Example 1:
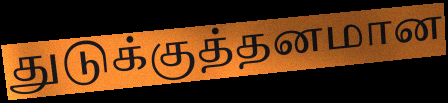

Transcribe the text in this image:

துடுக்குத்தனமான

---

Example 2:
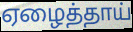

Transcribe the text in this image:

ஏழைத்தாய்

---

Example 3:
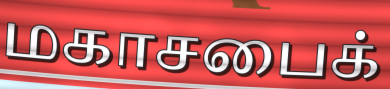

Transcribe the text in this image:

மகாசபைக்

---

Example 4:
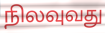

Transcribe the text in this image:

நிலவுவது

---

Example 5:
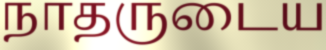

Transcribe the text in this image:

நாதருடைய